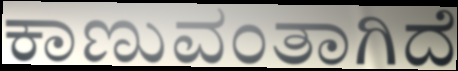
ಕಾಣುವಂತಾಗಿದೆ